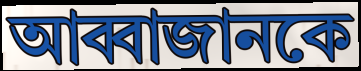
আব্বাজানকে